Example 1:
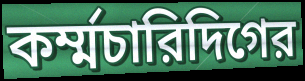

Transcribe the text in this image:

কর্ম্মচারিদিগের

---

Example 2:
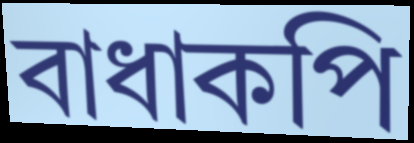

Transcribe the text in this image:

বাধাকপি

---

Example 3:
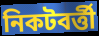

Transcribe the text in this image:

নিকটবর্ত্তী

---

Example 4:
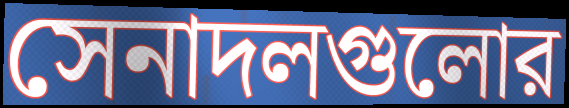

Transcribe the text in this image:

সেনাদলগুলোর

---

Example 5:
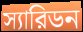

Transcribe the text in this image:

স্যারিডন